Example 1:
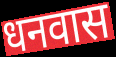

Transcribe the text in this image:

धनवास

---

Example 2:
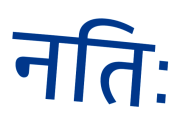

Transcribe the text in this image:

नतिः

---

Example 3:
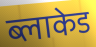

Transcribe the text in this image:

ब्लाकेड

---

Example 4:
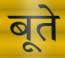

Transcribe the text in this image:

बूते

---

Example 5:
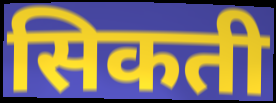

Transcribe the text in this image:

सिकती